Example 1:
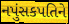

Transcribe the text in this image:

નપુંસકપતિને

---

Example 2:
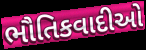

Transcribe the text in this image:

ભૌતિકવાદીઓ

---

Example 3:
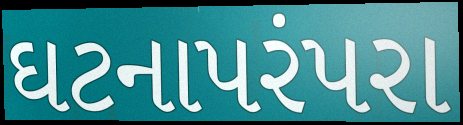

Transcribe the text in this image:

ઘટનાપરંપરા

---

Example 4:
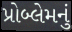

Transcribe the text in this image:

પ્રોબ્લેમનું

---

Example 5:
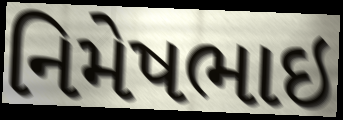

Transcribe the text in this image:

નિમેષભાઇ